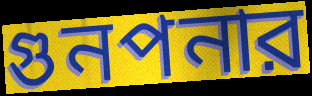
গুনপনার